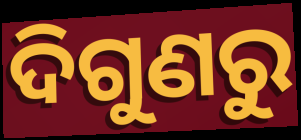
ଦିଗୁଣରୁ